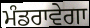
ਮੰਡਰਾਵੇਗਾ